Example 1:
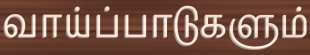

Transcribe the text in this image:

வாய்ப்பாடுகளும்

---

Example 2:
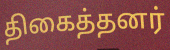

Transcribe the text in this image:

திகைத்தனர்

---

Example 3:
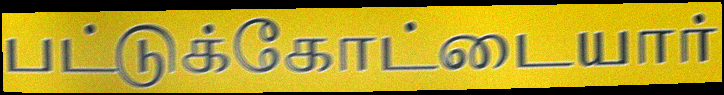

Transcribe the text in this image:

பட்டுக்கோட்டையார்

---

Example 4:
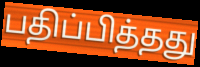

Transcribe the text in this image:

பதிப்பித்தது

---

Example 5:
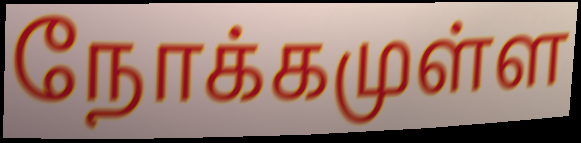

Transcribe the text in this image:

நோக்கமுள்ள